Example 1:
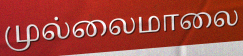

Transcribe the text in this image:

முல்லைமாலை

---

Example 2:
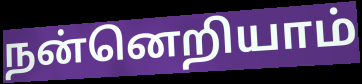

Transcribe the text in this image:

நன்னெறியாம்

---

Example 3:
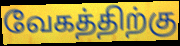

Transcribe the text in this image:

வேகத்திற்கு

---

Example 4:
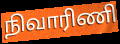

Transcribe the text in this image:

நிவாரிணி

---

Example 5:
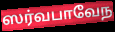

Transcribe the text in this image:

ஸர்வபாவேந